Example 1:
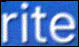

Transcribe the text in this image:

rite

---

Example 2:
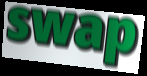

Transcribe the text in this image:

swap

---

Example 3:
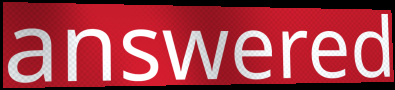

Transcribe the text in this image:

answered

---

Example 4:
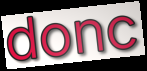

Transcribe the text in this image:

donc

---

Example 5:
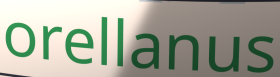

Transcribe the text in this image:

orellanus